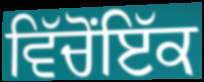
ਵਿੱਚੋਂਇੱਕ